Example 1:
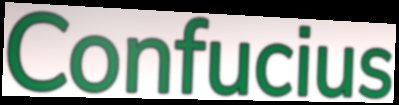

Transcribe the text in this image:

Confucius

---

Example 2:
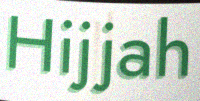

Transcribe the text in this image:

Hijjah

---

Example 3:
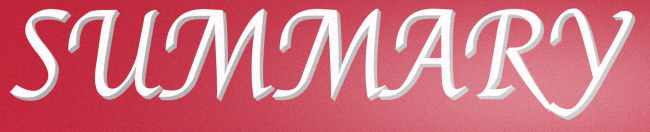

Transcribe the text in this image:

SUMMARY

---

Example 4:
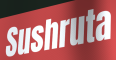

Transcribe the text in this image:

Sushruta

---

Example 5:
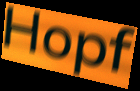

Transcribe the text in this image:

Hopf